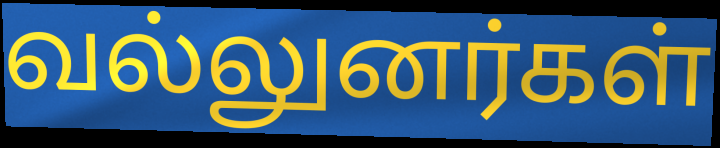
வல்லுனர்கள்